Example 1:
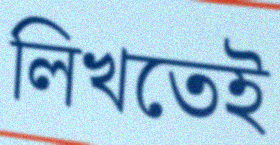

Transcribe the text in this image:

লিখতেই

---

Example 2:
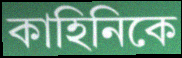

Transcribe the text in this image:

কাহিনিকে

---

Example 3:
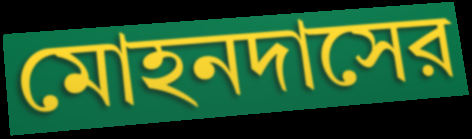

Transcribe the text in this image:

মোহনদাসের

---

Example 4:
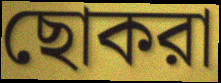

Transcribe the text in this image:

ছোকরা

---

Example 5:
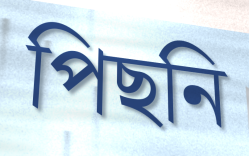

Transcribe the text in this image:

পিছনি